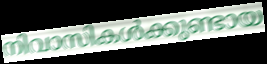
നിവാസികൾക്കുണ്ടായ